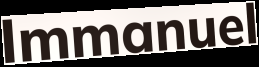
Immanuel